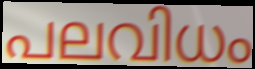
പലവിധം